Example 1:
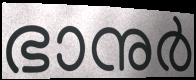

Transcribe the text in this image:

ഭാനുർ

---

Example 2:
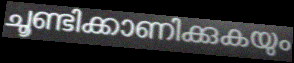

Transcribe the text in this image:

ചൂണ്ടിക്കാണിക്കുകയും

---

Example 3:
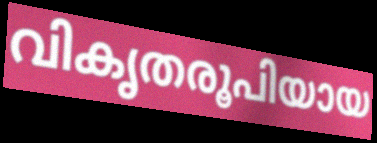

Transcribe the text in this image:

വികൃതരൂപിയായ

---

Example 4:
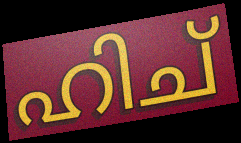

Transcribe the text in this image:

ഹിച്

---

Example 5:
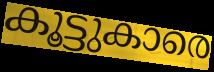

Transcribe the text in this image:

കൂട്ടുകാരെ